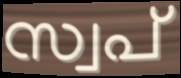
സ്വപ്